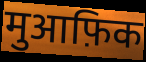
मुआफ़िक